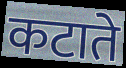
कटाते